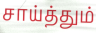
சாய்த்தும்